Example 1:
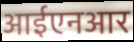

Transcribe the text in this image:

आईएनआर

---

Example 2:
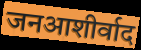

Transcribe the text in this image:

जनआशीर्वाद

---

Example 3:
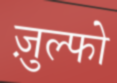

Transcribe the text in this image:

ज़ुल्फो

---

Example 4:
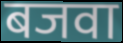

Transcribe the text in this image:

बजवा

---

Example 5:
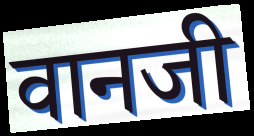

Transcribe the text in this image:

वानजी